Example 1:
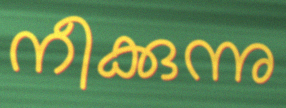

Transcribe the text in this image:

നീക്കുന്നു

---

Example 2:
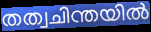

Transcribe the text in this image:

തത്വചിന്തയിൽ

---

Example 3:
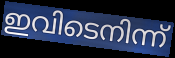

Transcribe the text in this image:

ഇവിടെനിന്ന്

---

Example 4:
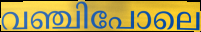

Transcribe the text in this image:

വഞ്ചിപോലെ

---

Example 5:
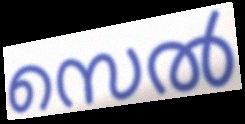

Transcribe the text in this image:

സെൽ